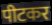
पीटकर